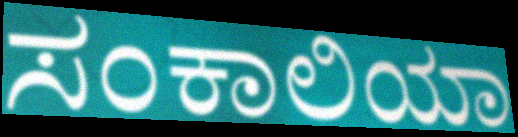
ಸಂಕಾಲಿಯಾ